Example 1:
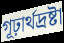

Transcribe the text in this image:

গূঢ়ার্থদ্রষ্টা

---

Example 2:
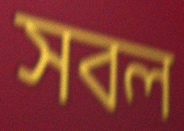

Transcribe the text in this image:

সবল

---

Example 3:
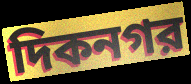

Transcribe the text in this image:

দিকনগর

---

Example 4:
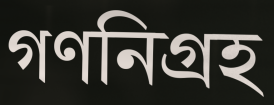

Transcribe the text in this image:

গণনিগ্রহ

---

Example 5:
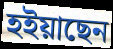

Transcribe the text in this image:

হইয়াছেন